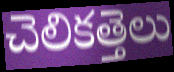
చెలికత్తెలు